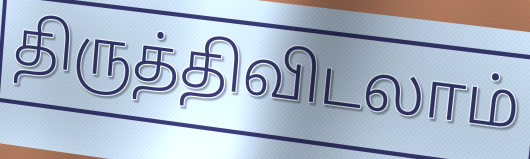
திருத்திவிடலாம்